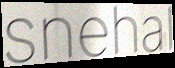
snehal